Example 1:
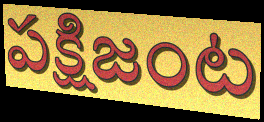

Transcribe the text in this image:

పక్షిజంట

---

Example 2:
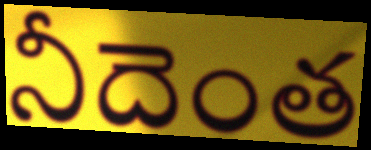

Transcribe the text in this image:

నీదెంత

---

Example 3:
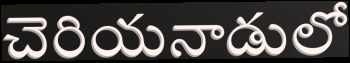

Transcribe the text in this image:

చెరియనాడులో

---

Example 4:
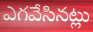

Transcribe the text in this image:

ఎగవేసినట్లు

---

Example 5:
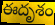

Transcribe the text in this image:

ఈదృశం